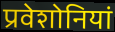
प्रवेशोनियां